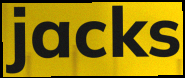
jacks